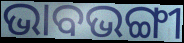
ଭାବଭଙ୍ଗୀ